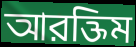
আরক্তিম